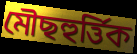
মৌছহুৰ্ত্তিক